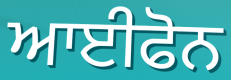
ਆਈਫੋਨ